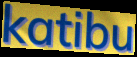
katibu